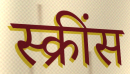
स्क्रींस